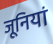
जूनियां